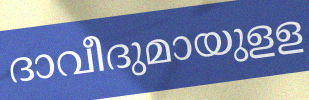
ദാവീദുമായുളള